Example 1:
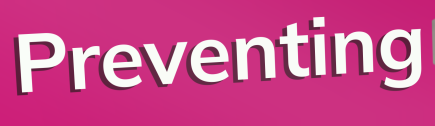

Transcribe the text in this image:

Preventing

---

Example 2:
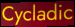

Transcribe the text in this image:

Cycladic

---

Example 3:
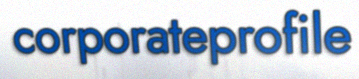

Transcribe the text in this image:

corporateprofile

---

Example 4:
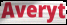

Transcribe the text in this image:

Averyt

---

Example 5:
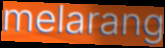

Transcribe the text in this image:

melarang